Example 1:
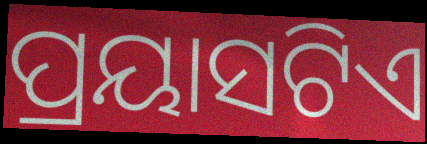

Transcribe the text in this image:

ପ୍ରୟାସଟିଏ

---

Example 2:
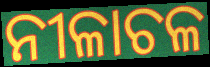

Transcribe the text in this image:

ନୀଳାଚଳ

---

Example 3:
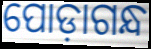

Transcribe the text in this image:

ପୋଡ଼ାଗନ୍ଧ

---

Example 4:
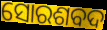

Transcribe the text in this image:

ସୋରଶବଦ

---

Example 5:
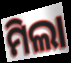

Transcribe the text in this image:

ମିଲା